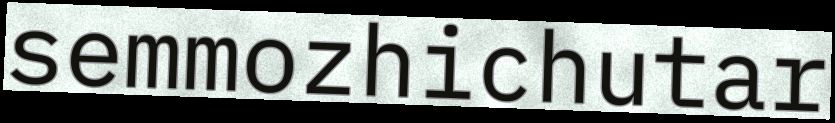
semmozhichutar